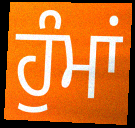
ਹੁੰਮਾਂ